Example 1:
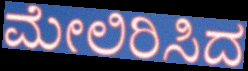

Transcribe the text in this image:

ಮೇಲಿರಿಸಿದ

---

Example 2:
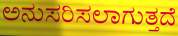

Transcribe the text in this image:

ಅನುಸರಿಸಲಾಗುತ್ತದೆ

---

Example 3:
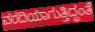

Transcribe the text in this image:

ವರದಿಯಾಗುತ್ತಿದ್ದಂತೆ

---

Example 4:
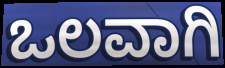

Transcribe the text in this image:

ಒಲವಾಗಿ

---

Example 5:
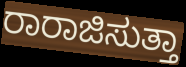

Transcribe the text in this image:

ರಾರಾಜಿಸುತ್ತಾ